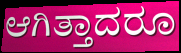
ಆಗಿತ್ತಾದರೂ